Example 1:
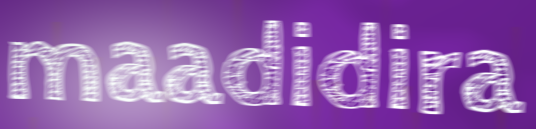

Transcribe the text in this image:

maadidira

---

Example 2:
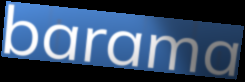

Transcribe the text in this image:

barama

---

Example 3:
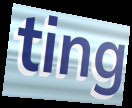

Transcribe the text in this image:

ting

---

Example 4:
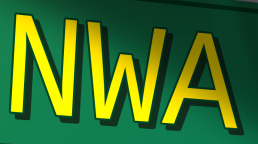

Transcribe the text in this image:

NWA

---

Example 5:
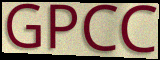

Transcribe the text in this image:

GPCC